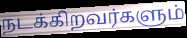
நடக்கிறவர்களும்